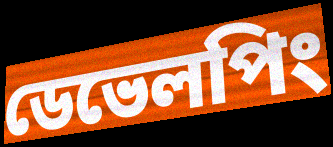
ডেভেলপিং